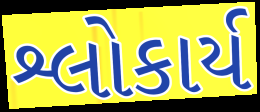
શ્લોકાર્ય